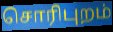
சொரிபுறம்